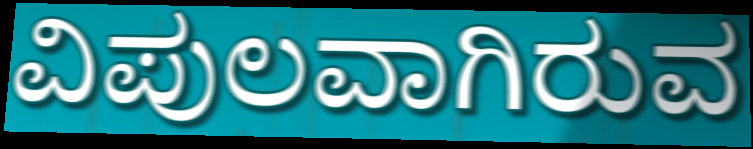
ವಿಪುಲವಾಗಿರುವ